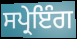
ਸਪ੍ਰੇਇੰਗ